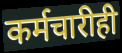
कर्मचारीही